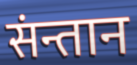
संन्तान